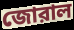
জোরাল